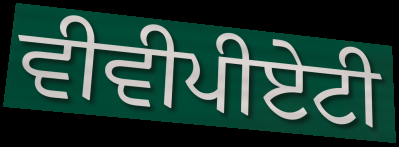
ਵੀਵੀਪੀਏਟੀ